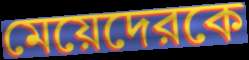
মেয়েদেরকে